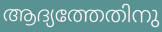
ആദ്യത്തേതിനു